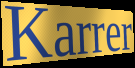
Karrer